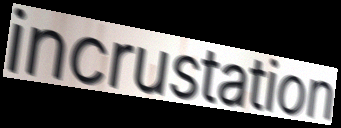
incrustation